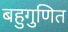
बहुगुणित